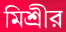
মিশ্রীর